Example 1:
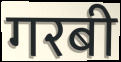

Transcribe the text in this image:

गरबी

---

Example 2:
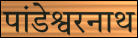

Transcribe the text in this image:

पांडेश्वरनाथ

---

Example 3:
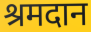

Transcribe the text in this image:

श्रमदान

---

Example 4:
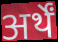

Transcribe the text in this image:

अर्थें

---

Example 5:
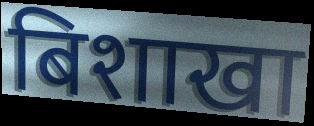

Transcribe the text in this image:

बिशाखा